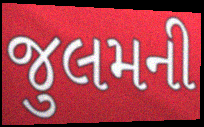
જુલમની